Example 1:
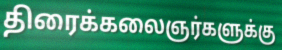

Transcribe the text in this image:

திரைக்கலைஞர்களுக்கு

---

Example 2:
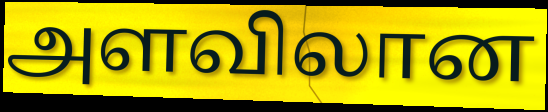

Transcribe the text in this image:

அளவிலான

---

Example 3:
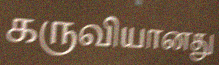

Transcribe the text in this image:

கருவியானது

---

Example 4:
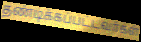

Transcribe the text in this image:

தண்டிக்கப்பட்டவர்கள்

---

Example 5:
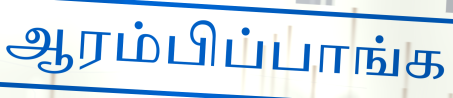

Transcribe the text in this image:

ஆரம்பிப்பாங்க